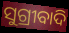
ସୁଗ୍ରୀବାଦି